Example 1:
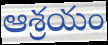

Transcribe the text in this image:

ఆశ్రయం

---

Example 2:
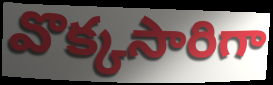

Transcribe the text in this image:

వొక్కసారిగా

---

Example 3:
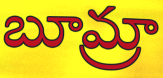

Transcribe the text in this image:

బూమ్రా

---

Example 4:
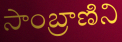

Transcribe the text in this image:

సాంబ్రాణిని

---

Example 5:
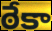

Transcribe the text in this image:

ఠేకా